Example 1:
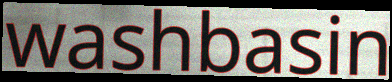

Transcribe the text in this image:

washbasin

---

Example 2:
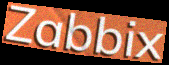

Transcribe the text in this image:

Zabbix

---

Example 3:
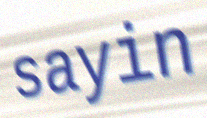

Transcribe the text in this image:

sayin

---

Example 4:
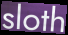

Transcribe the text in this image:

sloth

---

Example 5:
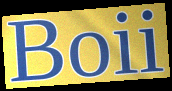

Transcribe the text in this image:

Boii